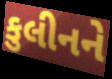
કુલીનને